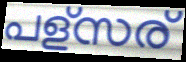
പള്സര്